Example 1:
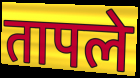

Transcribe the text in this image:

तापले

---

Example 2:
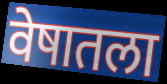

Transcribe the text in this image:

वेषातला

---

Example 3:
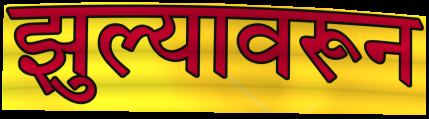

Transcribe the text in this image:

झुल्यावरून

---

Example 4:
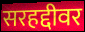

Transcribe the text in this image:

सरहद्दीवर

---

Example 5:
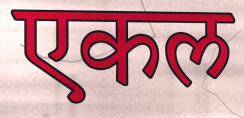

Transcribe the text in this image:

एकल